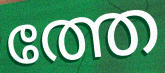
ത്തേ